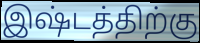
இஷ்டத்திற்கு